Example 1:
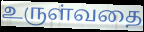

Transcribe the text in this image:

உருள்வதை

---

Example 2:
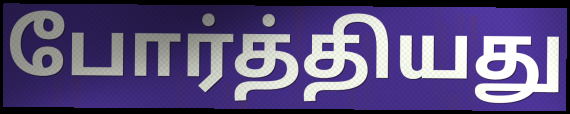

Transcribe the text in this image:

போர்த்தியது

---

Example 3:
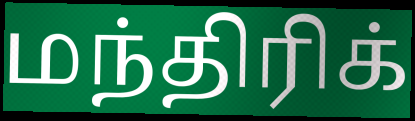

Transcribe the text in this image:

மந்திரிக்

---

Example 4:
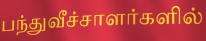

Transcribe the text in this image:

பந்துவீச்சாளர்களில்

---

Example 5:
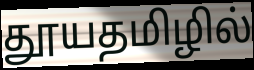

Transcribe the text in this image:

தூயதமிழில்